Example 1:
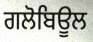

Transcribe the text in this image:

ਗਲੋਬਿਊਲ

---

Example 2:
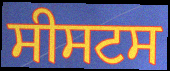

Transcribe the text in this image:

ਸੀਸਟਸ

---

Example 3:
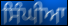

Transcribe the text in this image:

ਸਿੰਘੀਆ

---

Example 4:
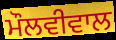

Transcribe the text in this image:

ਮੌਲਵੀਵਾਲ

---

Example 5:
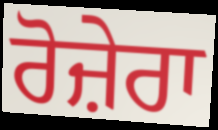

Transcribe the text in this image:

ਰੋਜ਼ੇਰਾ